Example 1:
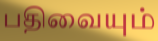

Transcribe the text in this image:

பதிவையும்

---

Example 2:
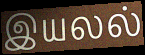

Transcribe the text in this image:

இயலல்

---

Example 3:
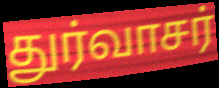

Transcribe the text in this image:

துர்வாசர்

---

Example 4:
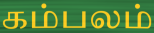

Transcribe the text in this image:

கம்பலம்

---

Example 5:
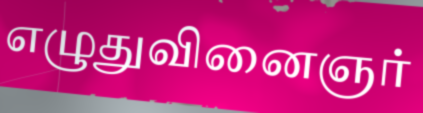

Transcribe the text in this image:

எழுதுவினைஞர்